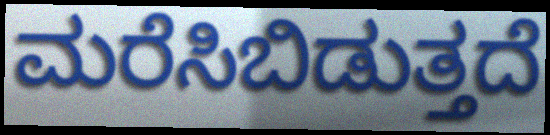
ಮರೆಸಿಬಿಡುತ್ತದೆ